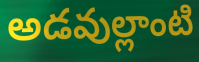
అడవుల్లాంటి